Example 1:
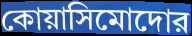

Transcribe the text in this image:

কোয়াসিমোদোর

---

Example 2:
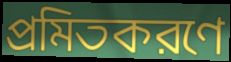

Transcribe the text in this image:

প্রমিতকরণে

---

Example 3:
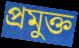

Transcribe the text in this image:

প্রমুক্ত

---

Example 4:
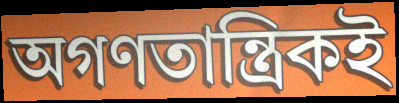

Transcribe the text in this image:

অগণতান্ত্রিকই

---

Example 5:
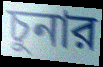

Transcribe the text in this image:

চুনার